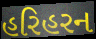
હરિહરન